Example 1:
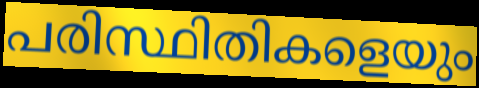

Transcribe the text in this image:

പരിസ്ഥിതികളെയും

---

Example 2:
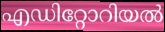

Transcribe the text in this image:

എഡിറ്റോറിയൽ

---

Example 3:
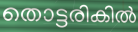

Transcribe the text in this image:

തൊട്ടരികിൽ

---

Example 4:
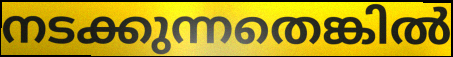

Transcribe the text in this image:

നടക്കുന്നതെങ്കിൽ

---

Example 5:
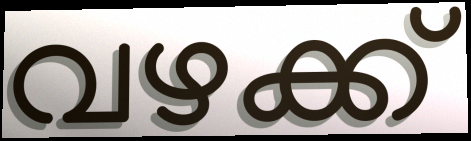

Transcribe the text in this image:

വഴക്ക്